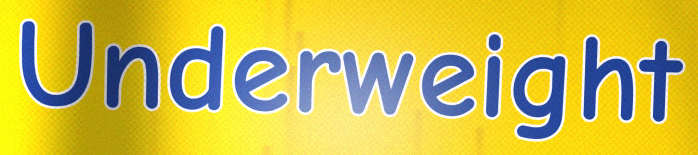
Underweight